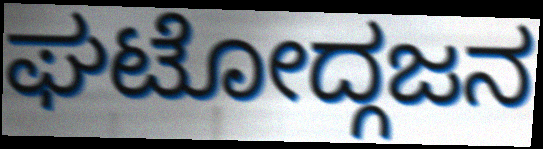
ಘಟೋದ್ಗಜನ